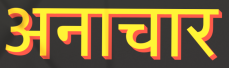
अनाचार